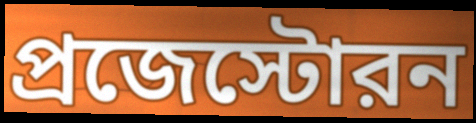
প্রজেস্টোরন